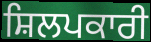
ਸ਼ਿਲਪਕਾਰੀ